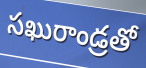
సఖురాండ్రతో